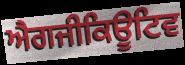
ਐਗਜੀਕਿਊਟਿਵ